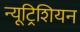
न्यूट्रिशियन